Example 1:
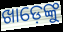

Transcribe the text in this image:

ଖାଡ଼େଙ୍କୁ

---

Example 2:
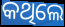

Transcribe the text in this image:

କଥିଲେ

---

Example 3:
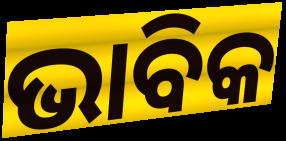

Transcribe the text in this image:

ଭାବିକ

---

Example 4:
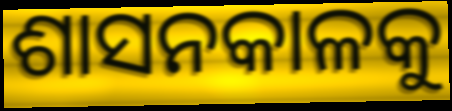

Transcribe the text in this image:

ଶାସନକାଳକୁ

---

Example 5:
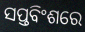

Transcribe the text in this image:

ସପ୍ତବିଂଶରେ